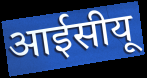
आईसीयू